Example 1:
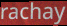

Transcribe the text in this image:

rachay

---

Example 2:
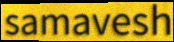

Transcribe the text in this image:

samavesh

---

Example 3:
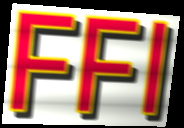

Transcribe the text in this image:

FFI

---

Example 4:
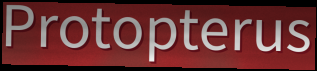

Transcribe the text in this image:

Protopterus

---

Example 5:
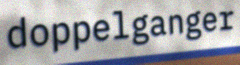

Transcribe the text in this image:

doppelganger